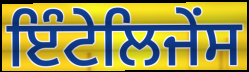
ਇੰਟੇਲਿਜੇਂਸ